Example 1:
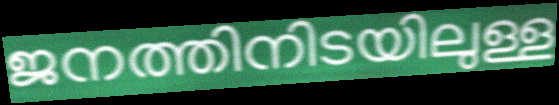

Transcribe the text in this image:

ജനത്തിനിടയിലുള്ള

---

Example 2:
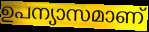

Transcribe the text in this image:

ഉപന്യാസമാണ്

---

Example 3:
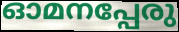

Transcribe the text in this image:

ഓമനപ്പേരു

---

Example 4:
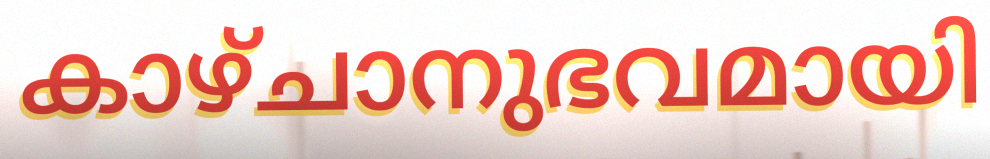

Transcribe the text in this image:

കാഴ്ചാനുഭവമായി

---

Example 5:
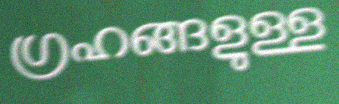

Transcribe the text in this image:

ഗ്രഹങ്ങളുള്ള